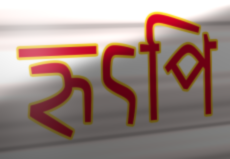
হৃৎপি